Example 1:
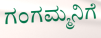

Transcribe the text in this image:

ಗಂಗಮ್ಮನಿಗೆ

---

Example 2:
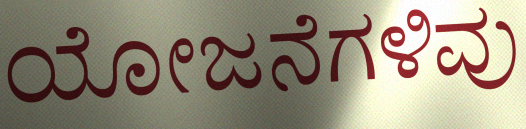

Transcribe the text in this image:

ಯೋಜನೆಗಳಿವು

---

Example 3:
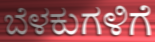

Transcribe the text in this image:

ಬೆಳಕುಗಳಿಗೆ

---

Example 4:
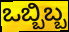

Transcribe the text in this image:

ಒಬ್ಬಿಬ್ಬ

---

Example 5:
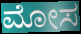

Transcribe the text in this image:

ಮೋಸ